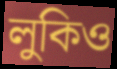
লুকিও